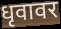
धृवावर